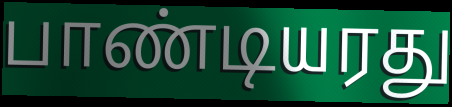
பாண்டியரது